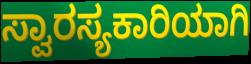
ಸ್ವಾರಸ್ಯಕಾರಿಯಾಗಿ